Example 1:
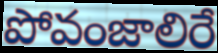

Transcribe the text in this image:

పోవంజాలిరే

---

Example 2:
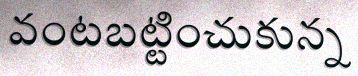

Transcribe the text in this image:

వంటబట్టించుకున్న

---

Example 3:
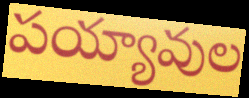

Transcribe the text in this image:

పయ్యావుల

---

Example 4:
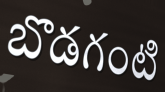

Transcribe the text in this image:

బొడగంటి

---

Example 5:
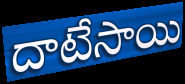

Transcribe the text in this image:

దాటేసాయి